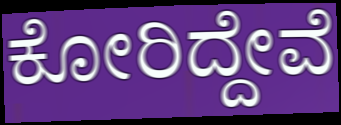
ಕೋರಿದ್ದೇವೆ